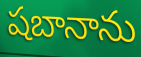
షబానాను